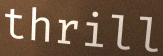
thrill